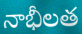
నాభీలత